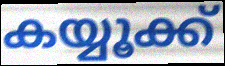
കയ്യൂക്ക്